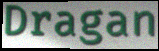
Dragan